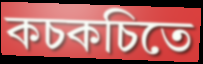
কচকচিতে